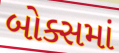
બોક્સમાં